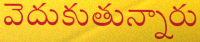
వెదుకుతున్నారు